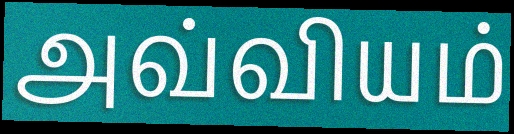
அவ்வியம்